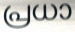
പ്രധാ